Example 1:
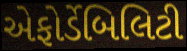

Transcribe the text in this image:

એફોર્ડેબિલિટી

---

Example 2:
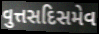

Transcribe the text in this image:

વુત્તસદિસમેવ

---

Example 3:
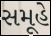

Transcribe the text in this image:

સમૂહે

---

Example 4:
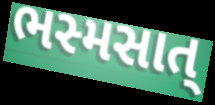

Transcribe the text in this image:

ભસ્મસાત્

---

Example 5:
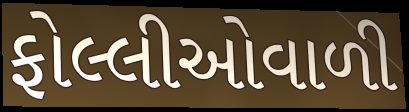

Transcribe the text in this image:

ફોલ્લીઓવાળી